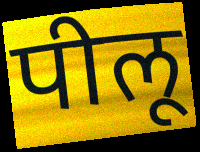
पीलू